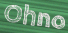
Ohno